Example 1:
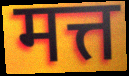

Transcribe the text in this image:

मत्त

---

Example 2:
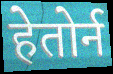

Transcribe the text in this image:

हेतोर्न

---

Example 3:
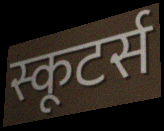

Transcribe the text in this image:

स्‍कूटर्स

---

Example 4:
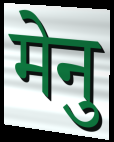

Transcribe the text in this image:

मेनु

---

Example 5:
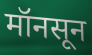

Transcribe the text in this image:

मॉनसून